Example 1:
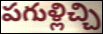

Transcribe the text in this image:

పగుళ్లిచ్చి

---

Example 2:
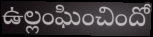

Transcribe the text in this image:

ఉల్లంఘించిందో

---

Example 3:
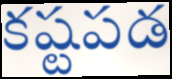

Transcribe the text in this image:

కష్టపడ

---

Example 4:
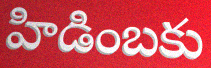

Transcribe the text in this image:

హిడింబకు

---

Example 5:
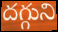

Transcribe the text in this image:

దగ్గుని